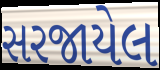
સરજાયેલ